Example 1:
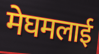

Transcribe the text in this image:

मेघमलाई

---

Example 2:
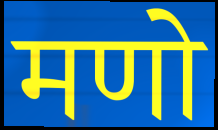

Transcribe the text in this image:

मणो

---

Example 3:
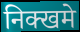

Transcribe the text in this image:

निक्खमे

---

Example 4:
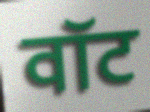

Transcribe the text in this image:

वॉट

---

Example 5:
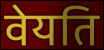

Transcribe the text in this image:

वेयति